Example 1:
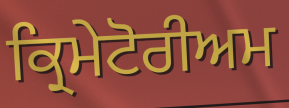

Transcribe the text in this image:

ਕ੍ਰਿਮੇਟੋਰੀਅਮ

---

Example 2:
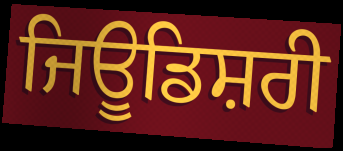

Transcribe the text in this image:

ਜਿਊਡਿਸ਼ਰੀ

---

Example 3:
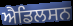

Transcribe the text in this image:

ਐਡਿਲਸਨ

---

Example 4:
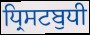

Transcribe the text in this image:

ਧ੍ਰਿਸਟਬੁਧੀ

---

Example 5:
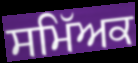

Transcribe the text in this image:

ਸਮਿੱਅਕ